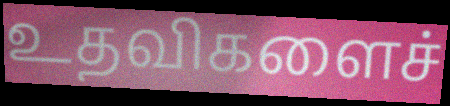
உதவிகளைச்